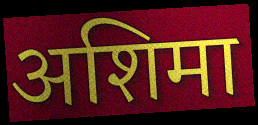
अशिमा